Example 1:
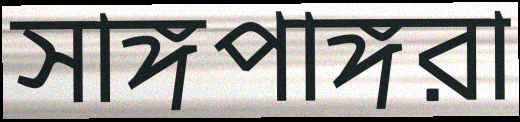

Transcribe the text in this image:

সাঙ্গপাঙ্গরা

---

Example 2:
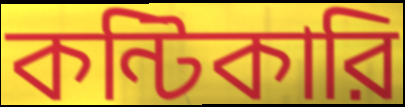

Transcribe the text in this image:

কন্টিকারি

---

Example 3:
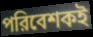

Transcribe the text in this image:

পরিবেশকই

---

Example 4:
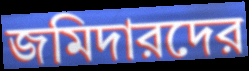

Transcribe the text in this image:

জমিদারদের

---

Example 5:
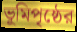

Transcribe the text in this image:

ভূমিপৃষ্ঠের